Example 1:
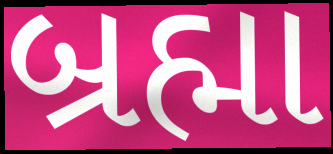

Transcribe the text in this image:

બ્રહ્મા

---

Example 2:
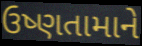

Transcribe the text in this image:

ઉષ્ણતામાને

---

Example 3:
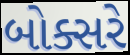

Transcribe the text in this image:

બોક્સરે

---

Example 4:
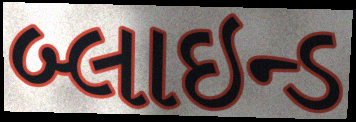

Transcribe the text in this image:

બ્લાઇન્ડ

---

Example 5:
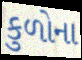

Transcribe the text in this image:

કુળોના